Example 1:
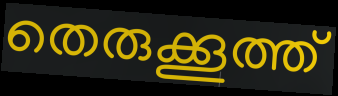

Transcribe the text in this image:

തെരുക്കൂത്ത്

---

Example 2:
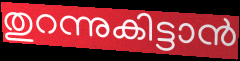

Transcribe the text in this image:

തുറന്നുകിട്ടാൻ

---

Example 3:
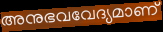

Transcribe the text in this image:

അനുഭവവേദ്യമാണ്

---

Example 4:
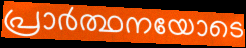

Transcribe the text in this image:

പ്രാർത്ഥനയോടെ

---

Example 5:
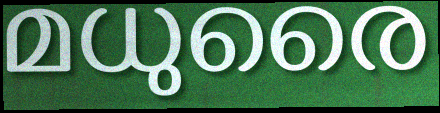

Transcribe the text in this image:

മധുരൈ